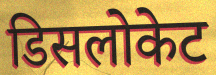
डिसलोकेट